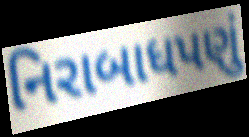
નિરાબાધપણું